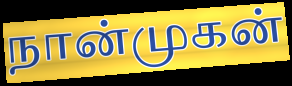
நான்முகன்